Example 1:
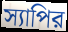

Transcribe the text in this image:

স্যাপির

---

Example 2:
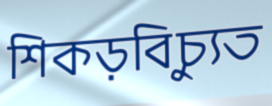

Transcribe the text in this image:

শিকড়বিচ্যুত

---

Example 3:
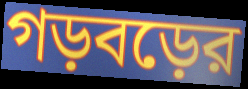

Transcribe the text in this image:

গড়বড়ের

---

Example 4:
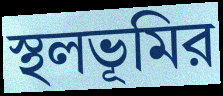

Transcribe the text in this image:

স্থলভূমির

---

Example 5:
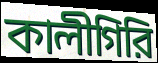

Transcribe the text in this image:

কালীগিরি